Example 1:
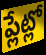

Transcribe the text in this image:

ప్లేట్లో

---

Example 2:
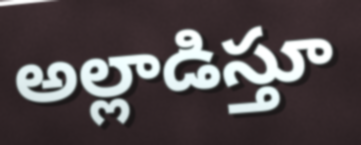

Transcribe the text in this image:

అల్లాడిస్తూ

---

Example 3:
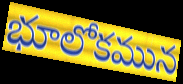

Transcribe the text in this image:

భూలోకమున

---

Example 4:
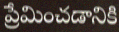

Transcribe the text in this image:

ప్రేమించడానికి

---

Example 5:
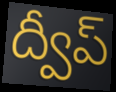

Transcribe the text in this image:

ద్వీప్